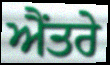
ਐਂਤਰੇ